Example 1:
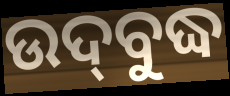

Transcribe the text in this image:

ଉଦ୍‍ବୁଦ୍ଧ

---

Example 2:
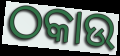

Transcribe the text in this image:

ଠକାଉ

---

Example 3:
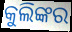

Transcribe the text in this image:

କୁଲିଙ୍କର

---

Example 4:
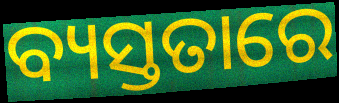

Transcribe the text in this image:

ବ୍ୟସ୍ତତାରେ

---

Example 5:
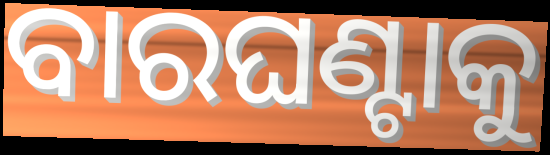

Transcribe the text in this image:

ବାରଘଣ୍ଟାକୁ